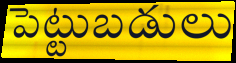
పెట్టుబడులు